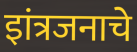
इांत्रजनाचे